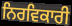
ਨਿਰਵਿਕਾਰੀ